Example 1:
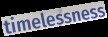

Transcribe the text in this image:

timelessness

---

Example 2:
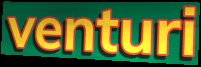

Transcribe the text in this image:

venturi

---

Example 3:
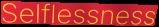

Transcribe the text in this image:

Selflessness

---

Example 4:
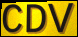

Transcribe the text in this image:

CDV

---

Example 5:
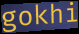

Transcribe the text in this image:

gokhi